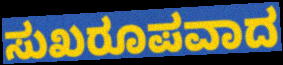
ಸುಖರೂಪವಾದ